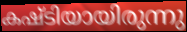
കഷ്ടിയായിരുന്നു